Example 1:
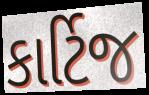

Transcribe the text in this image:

કાર્ટિજ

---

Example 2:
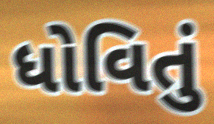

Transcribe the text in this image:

ધોવિતું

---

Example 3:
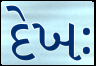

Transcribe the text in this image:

દેખઃ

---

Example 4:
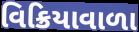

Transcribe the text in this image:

વિક્રિયાવાળા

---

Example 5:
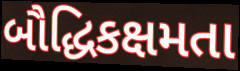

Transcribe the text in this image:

બૌદ્ધિકક્ષમતા